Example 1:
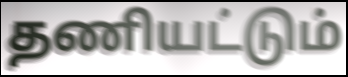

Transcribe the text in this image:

தணியட்டும்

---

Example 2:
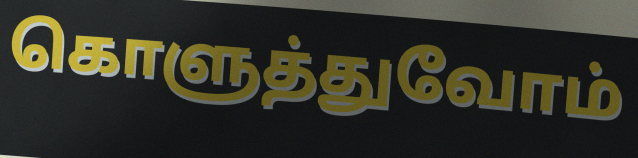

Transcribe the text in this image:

கொளுத்துவோம்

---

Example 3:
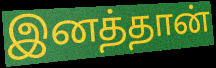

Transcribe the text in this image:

இனத்தான்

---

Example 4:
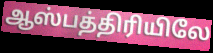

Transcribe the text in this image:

ஆஸ்பத்திரியிலே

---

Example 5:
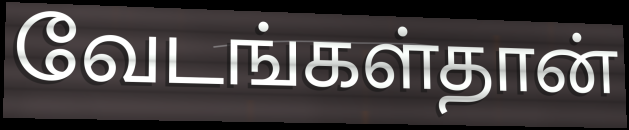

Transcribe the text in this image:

வேடங்கள்தான்